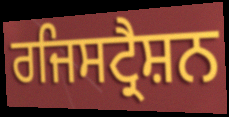
ਰਜਿਸਟ੍ਰੈਸ਼ਨ